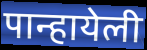
पान्हायेली